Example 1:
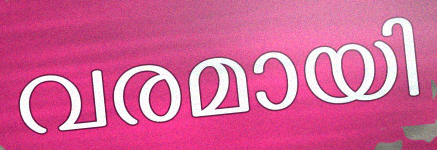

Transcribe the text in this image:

വരമായി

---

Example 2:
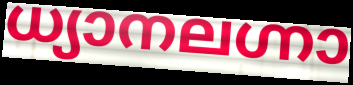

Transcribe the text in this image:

ധ്യാനലഗ്നാ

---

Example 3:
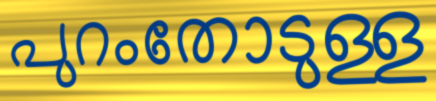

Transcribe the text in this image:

പുറംതോടുള്ള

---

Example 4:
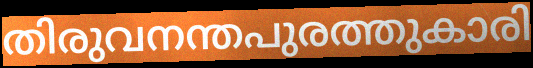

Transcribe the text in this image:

തിരുവനന്തപുരത്തുകാരി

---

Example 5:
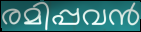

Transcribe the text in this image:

രമിപ്പവൻ